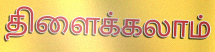
திளைக்கலாம்